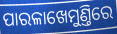
ପାରଳାଖେମୁଣ୍ତିରେ